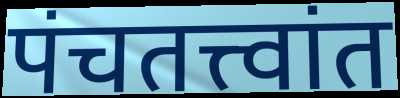
पंचतत्त्वांत